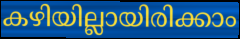
കഴിയില്ലായിരിക്കാം